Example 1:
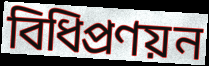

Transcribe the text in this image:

বিধিপ্রণয়ন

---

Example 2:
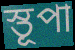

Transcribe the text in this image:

স্তূপা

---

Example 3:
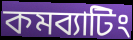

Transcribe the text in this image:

কমব্যাটিং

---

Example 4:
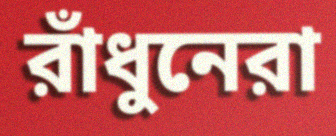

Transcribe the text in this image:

রাঁধুনেরা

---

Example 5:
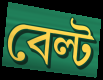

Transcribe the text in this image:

বেল্ট